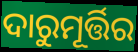
ଦାରୁମୂର୍ତ୍ତିର